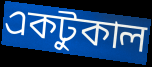
একটুকাল